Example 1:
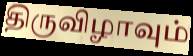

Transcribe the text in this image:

திருவிழாவும்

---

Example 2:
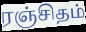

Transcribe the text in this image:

ரஞ்சிதம்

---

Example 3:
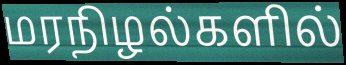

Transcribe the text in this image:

மரநிழல்களில்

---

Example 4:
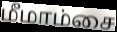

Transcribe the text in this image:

மீமாம்சை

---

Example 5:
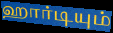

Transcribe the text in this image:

ஹார்டியும்